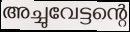
അച്ചുവേട്ടന്റെ